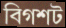
বিগশট